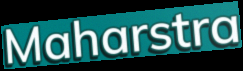
Maharstra